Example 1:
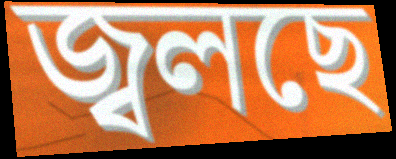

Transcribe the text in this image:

জ্বলছে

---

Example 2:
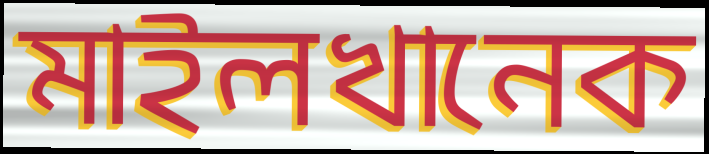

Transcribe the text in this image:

মাইলখানেক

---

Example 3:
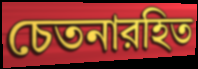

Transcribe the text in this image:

চেতনারহিত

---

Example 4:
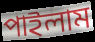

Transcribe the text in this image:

পাইলাম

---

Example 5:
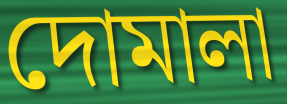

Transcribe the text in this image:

দোমালা